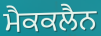
ਮੈਕਕਲੈਨ